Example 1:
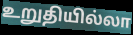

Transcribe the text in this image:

உறுதியில்லா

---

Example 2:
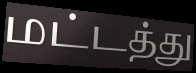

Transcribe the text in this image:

மட்டத்து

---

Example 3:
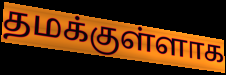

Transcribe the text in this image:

தமக்குள்ளாக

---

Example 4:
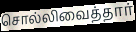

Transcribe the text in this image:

சொல்லிவைத்தார்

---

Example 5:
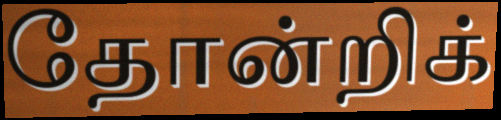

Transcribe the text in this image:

தோன்றிக்